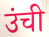
उंची